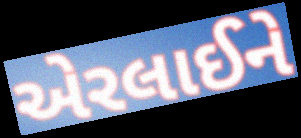
એરલાઈને